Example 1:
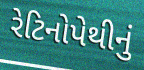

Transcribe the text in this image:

રેટિનોપેથીનું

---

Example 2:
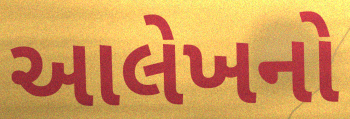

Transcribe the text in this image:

આલેખનો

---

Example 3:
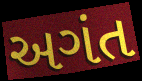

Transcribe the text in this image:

અગંત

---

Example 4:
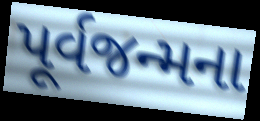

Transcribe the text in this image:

પૂર્વજન્મના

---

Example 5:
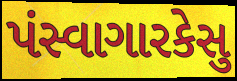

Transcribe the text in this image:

પંસ્વાગારકેસુ